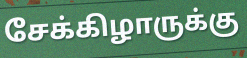
சேக்கிழாருக்கு